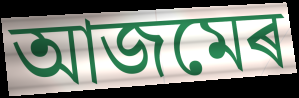
আজমেৰ